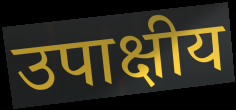
उपाक्षीय